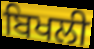
ਬਿਖਲੀ